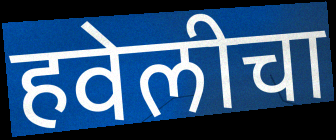
हवेलीचा